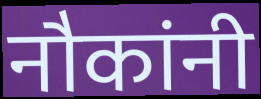
नौकांनी